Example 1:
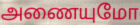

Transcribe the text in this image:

அணையுமோ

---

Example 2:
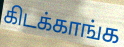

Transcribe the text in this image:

கிடக்காங்க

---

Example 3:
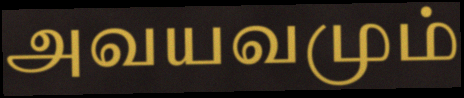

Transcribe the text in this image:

அவயவமும்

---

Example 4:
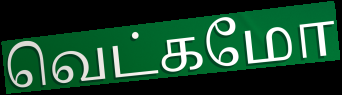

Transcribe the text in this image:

வெட்கமோ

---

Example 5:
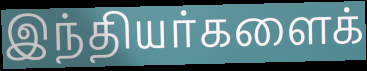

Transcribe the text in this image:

இந்தியர்களைக்